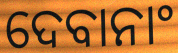
ଦେବାନାଂ